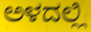
ಅಳದಲ್ಲಿ